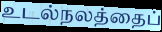
உடல்நலத்தைப்